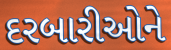
દરબારીઓને